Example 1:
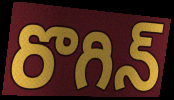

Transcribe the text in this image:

రొగిన్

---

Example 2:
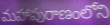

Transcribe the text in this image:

మహాపురాణంలోని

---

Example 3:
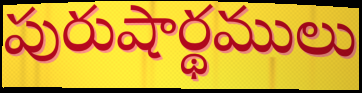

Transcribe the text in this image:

పురుషార్థములు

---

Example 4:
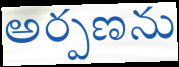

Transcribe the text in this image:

అర్పణను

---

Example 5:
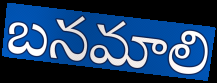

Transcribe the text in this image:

బనమాలి